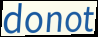
donot